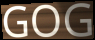
GOG